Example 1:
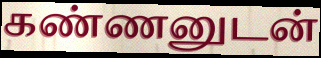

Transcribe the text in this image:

கண்ணனுடன்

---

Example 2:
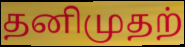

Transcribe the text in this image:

தனிமுதற்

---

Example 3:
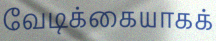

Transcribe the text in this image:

வேடிக்கையாகக்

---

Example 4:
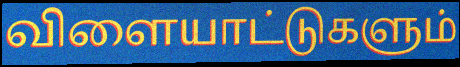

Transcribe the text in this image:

விளையாட்டுகளும்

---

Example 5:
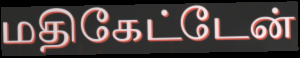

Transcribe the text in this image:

மதிகேட்டேன்